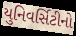
યુનિવર્સિટીનો